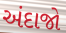
અંદાજો